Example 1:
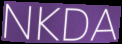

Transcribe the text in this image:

NKDA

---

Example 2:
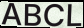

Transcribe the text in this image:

ABCL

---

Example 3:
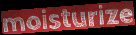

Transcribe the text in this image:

moisturize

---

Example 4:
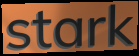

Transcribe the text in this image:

stark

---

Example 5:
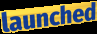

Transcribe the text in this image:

launched